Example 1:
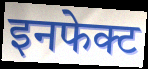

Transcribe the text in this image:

इनफेक्ट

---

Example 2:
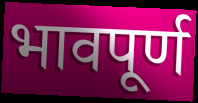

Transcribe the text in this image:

भावपूर्ण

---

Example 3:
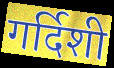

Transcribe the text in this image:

गर्दिशी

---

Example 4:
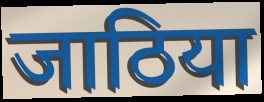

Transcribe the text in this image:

जाठिया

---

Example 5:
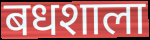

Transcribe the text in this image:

बधशाला